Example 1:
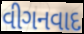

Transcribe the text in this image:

વીગનવાદ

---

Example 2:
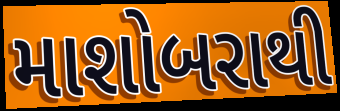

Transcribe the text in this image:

માશોબરાથી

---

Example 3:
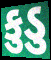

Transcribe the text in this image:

કુડુ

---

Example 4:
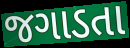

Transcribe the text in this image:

જગાડતા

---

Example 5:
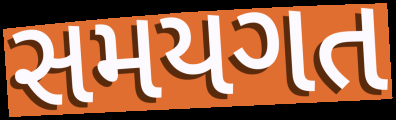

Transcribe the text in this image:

સમયગત